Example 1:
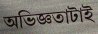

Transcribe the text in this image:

অভিজ্ঞতাটাই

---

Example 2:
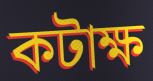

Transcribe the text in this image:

কটাক্ষ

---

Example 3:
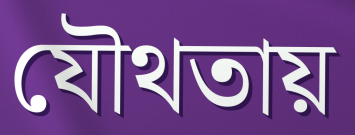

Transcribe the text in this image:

যৌথতায়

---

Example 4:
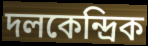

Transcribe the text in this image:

দলকেন্দ্রিক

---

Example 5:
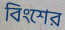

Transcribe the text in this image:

বিংশের